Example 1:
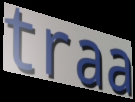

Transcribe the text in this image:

traa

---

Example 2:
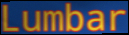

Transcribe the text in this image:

Lumbar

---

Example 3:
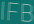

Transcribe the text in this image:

IFB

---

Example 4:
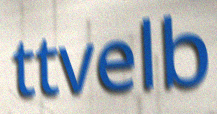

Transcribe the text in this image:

ttvelb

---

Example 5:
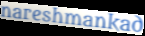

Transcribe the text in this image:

nareshmankad